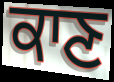
ਕਾਣ